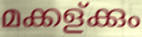
മക്കള്ക്കും